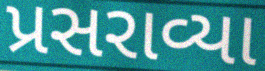
પ્રસરાવ્યા